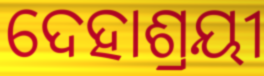
ଦେହାଶ୍ରୟୀ